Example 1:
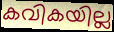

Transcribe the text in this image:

കവികയില്ല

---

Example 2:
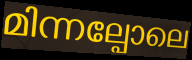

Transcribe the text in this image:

മിന്നല്പോലെ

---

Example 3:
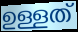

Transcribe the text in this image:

ഉള്ളത്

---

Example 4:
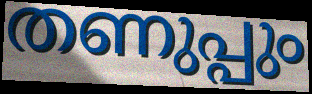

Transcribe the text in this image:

തണുപ്പും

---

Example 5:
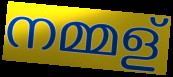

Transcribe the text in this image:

നമ്മള്